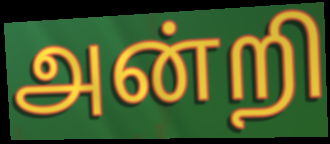
அன்றி